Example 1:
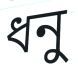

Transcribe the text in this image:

ধনু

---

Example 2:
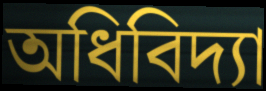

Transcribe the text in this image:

অধিবিদ্যা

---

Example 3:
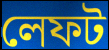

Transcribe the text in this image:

লেফট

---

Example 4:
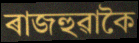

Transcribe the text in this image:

ৰাজহুৱাকৈ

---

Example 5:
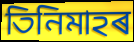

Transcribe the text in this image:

তিনিমাহৰ